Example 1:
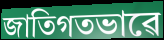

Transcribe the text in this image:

জাতিগতভাৱে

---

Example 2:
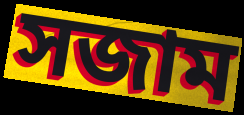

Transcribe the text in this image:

সজাম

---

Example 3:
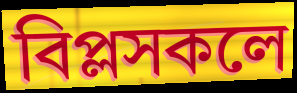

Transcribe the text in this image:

বিপ্লসকলে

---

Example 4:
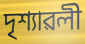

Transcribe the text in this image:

দৃশ্যাৱলী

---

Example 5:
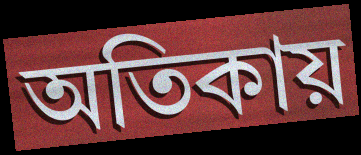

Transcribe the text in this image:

অতিকায়